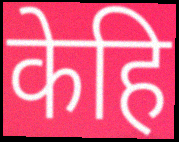
केहि